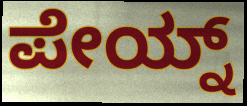
ಪೇಯ್ನ್